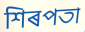
শিৰপতা